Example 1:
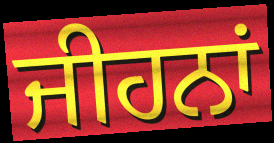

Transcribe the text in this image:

ਜੀਹਨਾਂ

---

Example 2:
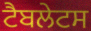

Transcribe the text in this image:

ਟੈਬਲੇਟਸ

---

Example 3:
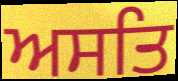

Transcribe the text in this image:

ਅਸਤਿ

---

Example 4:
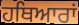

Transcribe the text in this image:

ਹਥਿਆਰਾਂ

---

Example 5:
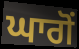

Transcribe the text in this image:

ਘਾਗੋਂ